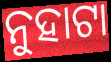
ନୁହାଟା